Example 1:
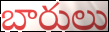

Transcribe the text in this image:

బారులు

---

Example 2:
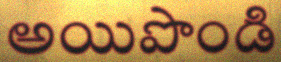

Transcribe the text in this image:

అయిపొండి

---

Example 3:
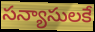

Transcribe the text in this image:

సన్యాసులకే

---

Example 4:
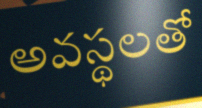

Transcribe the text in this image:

అవస్థలతో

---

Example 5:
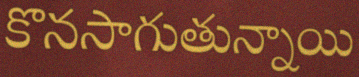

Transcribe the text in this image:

కొనసాగుతున్నాయి